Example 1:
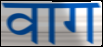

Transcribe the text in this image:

वाग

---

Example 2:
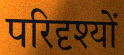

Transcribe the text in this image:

परिदृश्यों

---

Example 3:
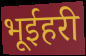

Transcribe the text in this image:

भूईहरी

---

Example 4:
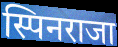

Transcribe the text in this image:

स्पिनराजा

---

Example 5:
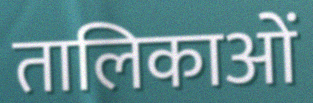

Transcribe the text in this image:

तालिकाओं